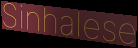
Sinhalese